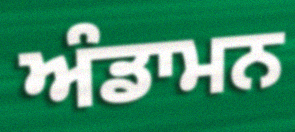
ਅੰਡਾਮਨ